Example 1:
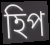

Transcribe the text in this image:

হিপ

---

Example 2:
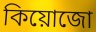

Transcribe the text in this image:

কিয়োজো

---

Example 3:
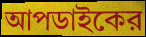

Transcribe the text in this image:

আপডাইকের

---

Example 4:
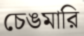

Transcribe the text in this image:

চেঙমারি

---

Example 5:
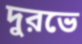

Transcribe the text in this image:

দুরভে